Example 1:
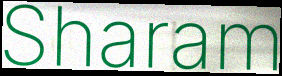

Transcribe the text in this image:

Sharam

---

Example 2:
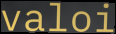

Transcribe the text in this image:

valoi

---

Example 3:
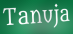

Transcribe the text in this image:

Tanuja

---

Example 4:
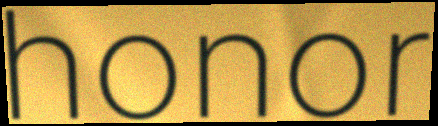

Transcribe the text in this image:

honor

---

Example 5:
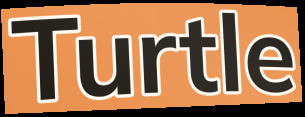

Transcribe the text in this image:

Turtle